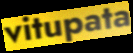
vitupata